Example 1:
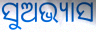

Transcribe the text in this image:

ସୁଅଭ୍ୟାସ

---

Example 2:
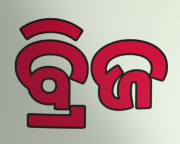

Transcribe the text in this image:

ବ୍ରିଜ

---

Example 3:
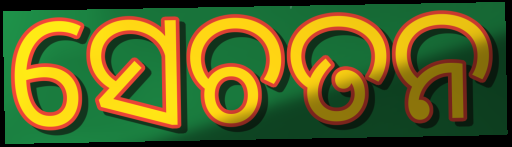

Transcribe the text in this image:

ସେଚତନ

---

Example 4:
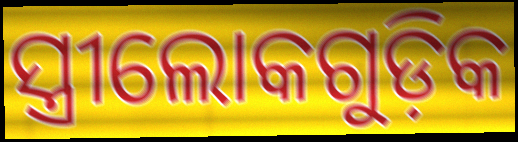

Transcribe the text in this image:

ସ୍ତ୍ରୀଲୋକଗୁଡ଼ିକ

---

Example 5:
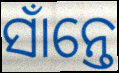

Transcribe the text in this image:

ସାଁନ୍ତେ